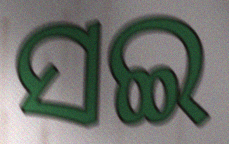
ସଇ